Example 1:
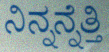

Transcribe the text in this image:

ನಿನ್ನನ್ನೆತ್ತಿ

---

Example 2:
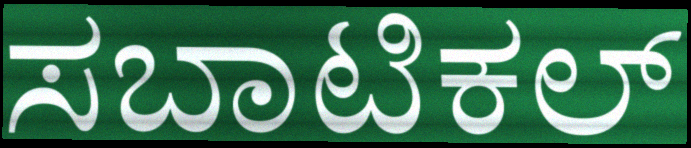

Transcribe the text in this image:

ಸಬಾಟಿಕಲ್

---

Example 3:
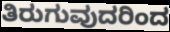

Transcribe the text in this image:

ತಿರುಗುವುದರಿಂದ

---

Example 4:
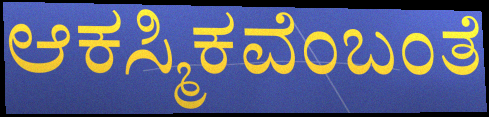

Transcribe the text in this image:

ಆಕಸ್ಮಿಕವೆಂಬಂತೆ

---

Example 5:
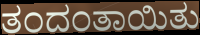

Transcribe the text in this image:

ತಂದಂತಾಯಿತು